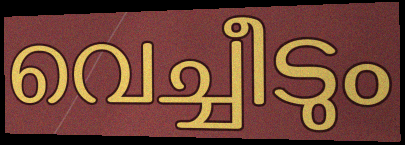
വെച്ചീടും